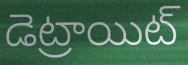
డెట్రాయిట్